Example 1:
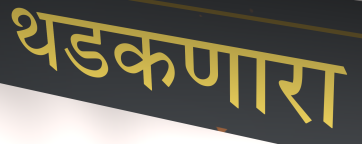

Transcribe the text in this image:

थडकणारा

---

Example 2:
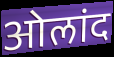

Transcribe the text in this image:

ओलांद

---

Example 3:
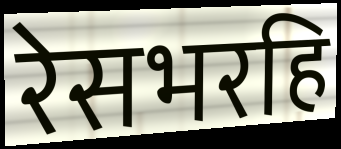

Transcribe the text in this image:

रेसभरहि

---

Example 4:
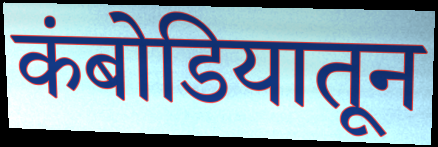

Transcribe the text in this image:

कंबोडियातून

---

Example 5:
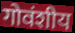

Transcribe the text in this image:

गोवंशीय